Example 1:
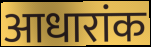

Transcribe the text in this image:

आधारांक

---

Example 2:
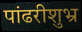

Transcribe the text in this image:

पांढरीशुभ्र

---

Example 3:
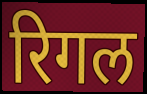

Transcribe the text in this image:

रिगल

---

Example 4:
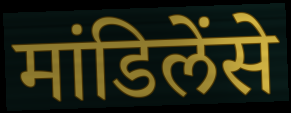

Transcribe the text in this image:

मांडिलेंसे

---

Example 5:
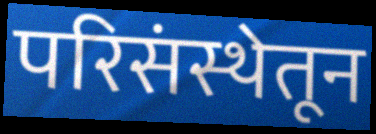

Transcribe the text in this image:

परिसंस्थेतून